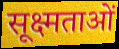
सूक्ष्मताओं